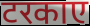
टरकाए